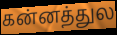
கன்னத்துல